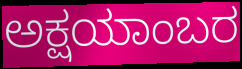
ಅಕ್ಷಯಾಂಬರ